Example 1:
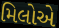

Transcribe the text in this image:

મિલોએ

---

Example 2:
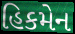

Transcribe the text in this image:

હિકમેન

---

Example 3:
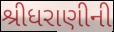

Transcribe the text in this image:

શ્રીધરાણીની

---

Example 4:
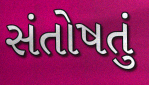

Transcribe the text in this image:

સંતોષતું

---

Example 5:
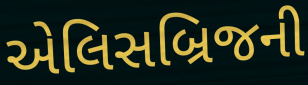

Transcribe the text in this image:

એલિસબ્રિજની